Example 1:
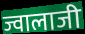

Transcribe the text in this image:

ज्वालाजी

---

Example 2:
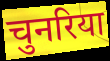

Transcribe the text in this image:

चुनरिया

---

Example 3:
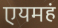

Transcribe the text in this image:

एयमहं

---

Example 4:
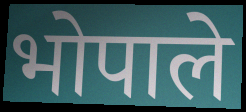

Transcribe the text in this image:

भोपाले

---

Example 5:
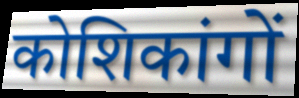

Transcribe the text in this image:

कोशिकांगों